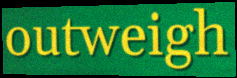
outweigh